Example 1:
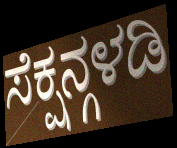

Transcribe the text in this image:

ಸೆಕ್ಷನ್ಗಳಡಿ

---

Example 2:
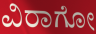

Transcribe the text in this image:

ವಿರಾಗೋ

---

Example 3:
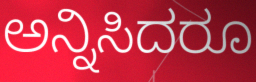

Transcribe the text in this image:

ಅನ್ನಿಸಿದರೂ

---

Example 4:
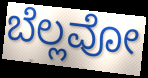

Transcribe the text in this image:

ಬೆಲ್ಲವೋ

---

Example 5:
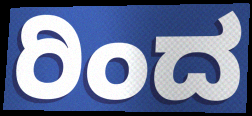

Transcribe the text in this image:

ರಿಂದ